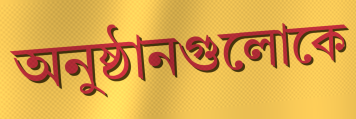
অনুষ্ঠানগুলোকে